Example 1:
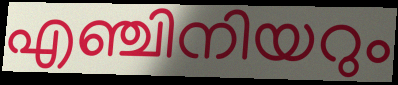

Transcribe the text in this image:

എഞ്ചിനിയറും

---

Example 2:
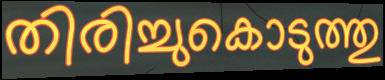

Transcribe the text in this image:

തിരിച്ചുകൊടുത്തു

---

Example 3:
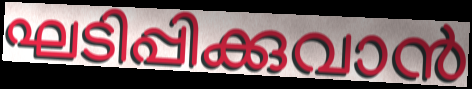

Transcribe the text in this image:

ഘടിപ്പിക്കുവാൻ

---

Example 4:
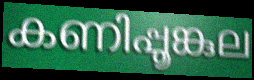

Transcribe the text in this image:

കണിപ്പൂങ്കുല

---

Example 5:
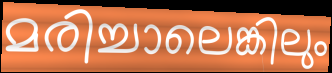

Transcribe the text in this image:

മരിച്ചാലെങ്കിലും